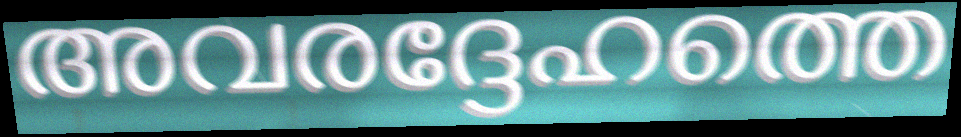
അവരദ്ദേഹത്തെ